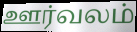
ஊர்வலம்